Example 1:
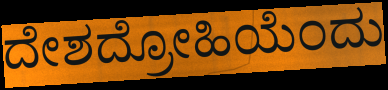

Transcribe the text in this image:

ದೇಶದ್ರೋಹಿಯೆಂದು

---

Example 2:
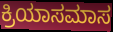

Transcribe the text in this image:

ಕ್ರಿಯಾಸಮಾಸ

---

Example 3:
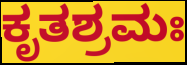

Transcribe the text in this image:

ಕೃತಶ್ರಮಃ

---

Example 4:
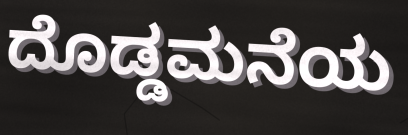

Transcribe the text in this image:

ದೊಡ್ಡಮನೆಯ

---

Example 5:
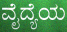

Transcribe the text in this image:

ವೈದ್ಯೆಯ